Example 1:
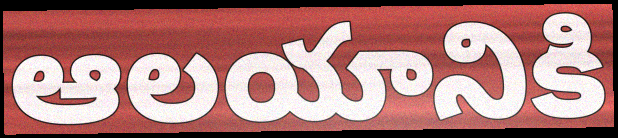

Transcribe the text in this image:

ఆలయానికి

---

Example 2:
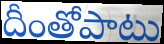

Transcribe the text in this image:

దీంతోపాటు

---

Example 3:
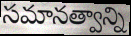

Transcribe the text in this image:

సమానత్వాన్ని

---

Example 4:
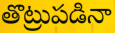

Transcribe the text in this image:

తొట్రుపడినా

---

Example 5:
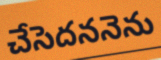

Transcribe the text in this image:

చేసెదననెను